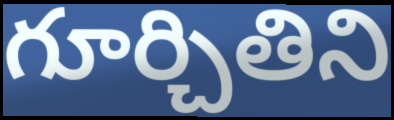
గూర్చితిని